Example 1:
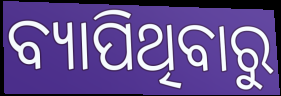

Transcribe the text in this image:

ବ୍ୟାପିଥିବାରୁ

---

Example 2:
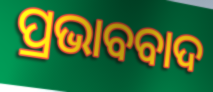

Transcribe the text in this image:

ପ୍ରଭାବବାଦ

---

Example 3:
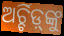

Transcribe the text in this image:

ଅର୍ଚ୍ଚିଡ଼୍‌ଙ୍କୁ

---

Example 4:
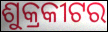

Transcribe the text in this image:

ଶୁକ୍ରକୀଟର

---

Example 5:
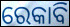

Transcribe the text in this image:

ରେକାବି